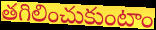
తగిలించుకుంటాం